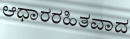
ಆಧಾರರಹಿತವಾದ